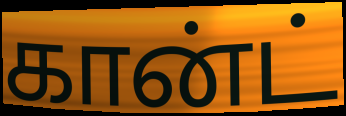
கான்ட்